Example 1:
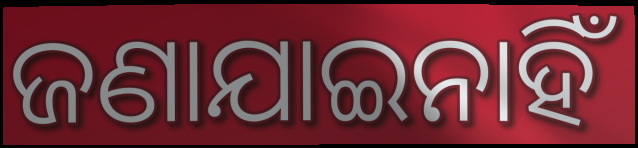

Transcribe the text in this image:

ଜଣାଯାଇନାହିଁ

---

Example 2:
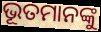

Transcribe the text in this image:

ଭୂତମାନଙ୍କୁ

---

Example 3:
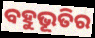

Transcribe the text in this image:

ବହୁଭୂତିର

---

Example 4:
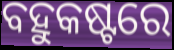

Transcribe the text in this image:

ବହୁକଷ୍ଟରେ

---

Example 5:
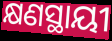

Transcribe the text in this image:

କ୍ଷଣସ୍ଥାୟୀ